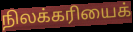
நிலக்கரியைக்